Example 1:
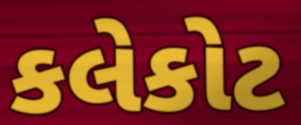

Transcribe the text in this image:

કલેકોટ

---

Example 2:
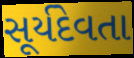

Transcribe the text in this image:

સૂર્યદેવતા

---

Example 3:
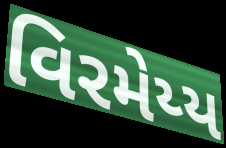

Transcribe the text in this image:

વિરમેય્ય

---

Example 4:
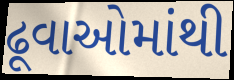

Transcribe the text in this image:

ઢૂવાઓમાંથી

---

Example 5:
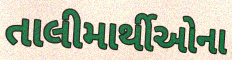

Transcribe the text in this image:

તાલીમાર્થીઓના